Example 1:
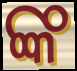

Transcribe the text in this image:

ଙ୍କ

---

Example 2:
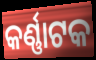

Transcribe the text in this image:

କର୍ଣ୍ଣାଟକ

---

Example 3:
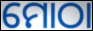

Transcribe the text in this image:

ମୋଠା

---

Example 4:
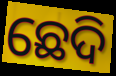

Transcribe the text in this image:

ଛେଦି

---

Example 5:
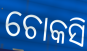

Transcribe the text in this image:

ଚୋକସି